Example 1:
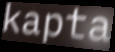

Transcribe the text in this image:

kapta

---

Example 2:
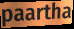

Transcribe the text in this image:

paartha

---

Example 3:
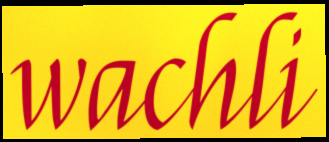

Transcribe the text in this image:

wachli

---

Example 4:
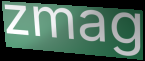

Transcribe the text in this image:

zmag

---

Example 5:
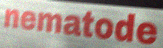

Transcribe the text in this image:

nematode